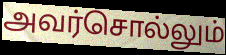
அவர்சொல்லும்